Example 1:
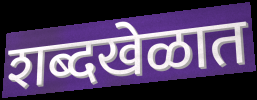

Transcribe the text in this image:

शब्दखेळात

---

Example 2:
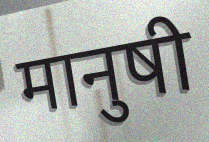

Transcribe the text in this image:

मानुषी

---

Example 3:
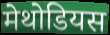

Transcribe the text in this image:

मेथोडियस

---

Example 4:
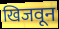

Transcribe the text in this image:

खिजवून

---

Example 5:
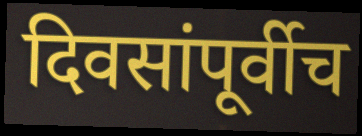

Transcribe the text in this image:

दिवसांपूर्वीच